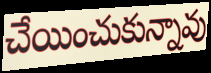
చేయించుకున్నావు